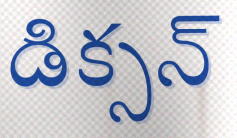
డిక్సన్